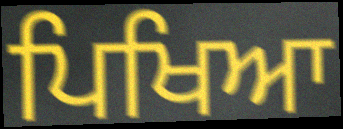
ਪਿਖਿਆ